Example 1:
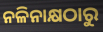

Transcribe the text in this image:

ନଳିନାକ୍ଷଠାରୁ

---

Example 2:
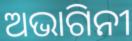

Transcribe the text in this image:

ଅଭାଗିନୀ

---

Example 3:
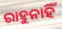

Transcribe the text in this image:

ରାହୁନାହିଁ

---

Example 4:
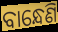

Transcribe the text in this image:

ବାନ୍ଧେଣି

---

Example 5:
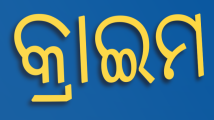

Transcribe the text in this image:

କ୍ରାଇମ